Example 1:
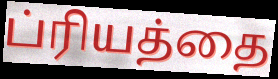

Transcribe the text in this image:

ப்ரியத்தை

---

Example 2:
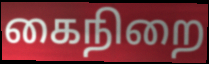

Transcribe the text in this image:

கைநிறை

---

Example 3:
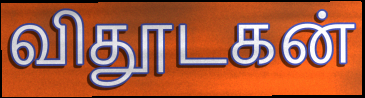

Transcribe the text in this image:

விதூடகன்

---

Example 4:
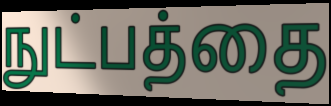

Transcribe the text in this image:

நுட்பத்தை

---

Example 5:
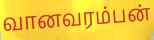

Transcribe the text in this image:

வானவரம்பன்